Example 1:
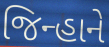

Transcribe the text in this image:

જિન્હાને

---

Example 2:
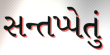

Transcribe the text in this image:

સન્તપ્પેતું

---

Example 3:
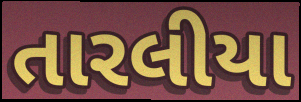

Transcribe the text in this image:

તારલીયા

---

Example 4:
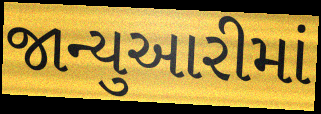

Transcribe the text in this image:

જાન્યુઆરીમાં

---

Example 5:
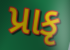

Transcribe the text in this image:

પ્રાકૃ